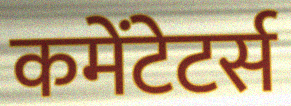
कमेंटेटर्स